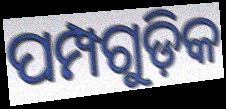
ପମ୍ପଗୁଡ଼ିକ